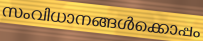
സംവിധാനങ്ങൾക്കൊപ്പം